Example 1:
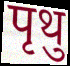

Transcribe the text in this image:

पृथु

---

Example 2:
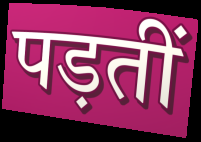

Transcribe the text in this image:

पड़तीं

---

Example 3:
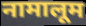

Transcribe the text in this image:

नामालूम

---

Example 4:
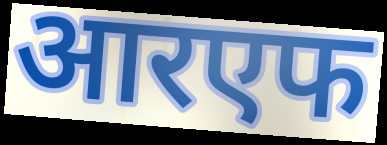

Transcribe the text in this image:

आरएफ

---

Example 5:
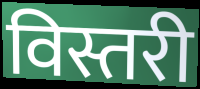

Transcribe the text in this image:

विस्तरी